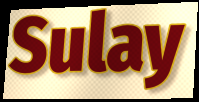
Sulay